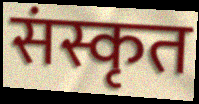
संस्‍कृत